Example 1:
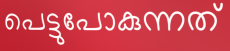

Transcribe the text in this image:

പെട്ടുപോകുന്നത്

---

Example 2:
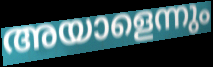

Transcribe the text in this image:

അയാളെന്നും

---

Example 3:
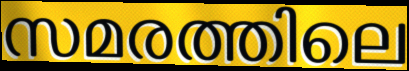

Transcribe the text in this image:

സമരത്തിലെ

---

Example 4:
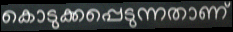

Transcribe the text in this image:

കൊടുക്കപ്പെടുന്നതാണ്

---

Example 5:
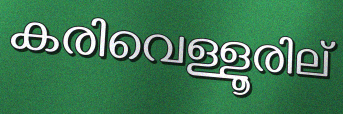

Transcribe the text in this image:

കരിവെള്ളൂരില്